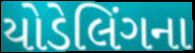
યોડેલિંગના